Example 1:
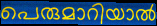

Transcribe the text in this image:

പെരുമാറിയാൽ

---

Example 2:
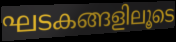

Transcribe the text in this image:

ഘടകങ്ങളിലൂടെ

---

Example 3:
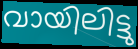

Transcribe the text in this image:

വായിലിട്ടു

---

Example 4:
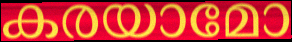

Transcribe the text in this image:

കരയാമോ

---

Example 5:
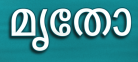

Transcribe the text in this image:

മൃതോ